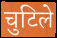
चुटिले